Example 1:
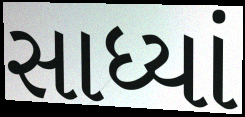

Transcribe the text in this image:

સાધ્યાં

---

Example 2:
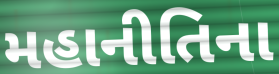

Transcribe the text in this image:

મહાનીતિના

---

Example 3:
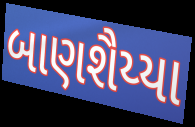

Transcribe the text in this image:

બાણશૈય્યા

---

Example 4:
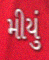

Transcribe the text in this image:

મીયું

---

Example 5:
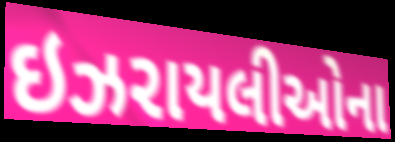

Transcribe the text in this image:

ઇઝરાયલીઓના